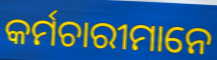
କର୍ମଚାରୀମାନେ